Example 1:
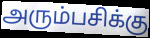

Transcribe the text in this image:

அரும்பசிக்கு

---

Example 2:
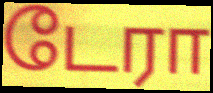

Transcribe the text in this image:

டேரா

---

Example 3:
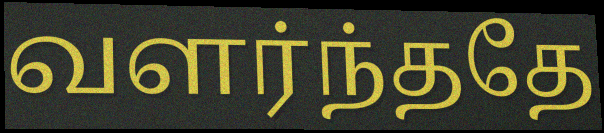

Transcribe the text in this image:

வளர்ந்ததே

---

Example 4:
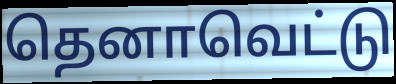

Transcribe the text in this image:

தெனாவெட்டு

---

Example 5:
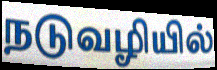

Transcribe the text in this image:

நடுவழியில்